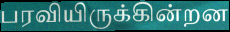
பரவியிருக்கின்றன